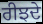
ਰੀਝਦੇ